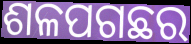
ଶଳପଗଛର